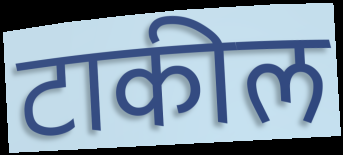
टाकील